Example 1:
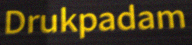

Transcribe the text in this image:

Drukpadam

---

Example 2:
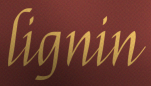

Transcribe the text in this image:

lignin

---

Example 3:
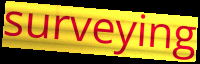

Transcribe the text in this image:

surveying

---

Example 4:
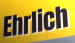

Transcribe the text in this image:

Ehrlich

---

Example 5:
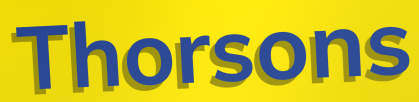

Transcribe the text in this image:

Thorsons